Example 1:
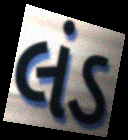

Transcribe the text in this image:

લંડ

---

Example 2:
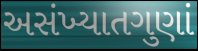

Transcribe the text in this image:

અસંખ્યાતગુણાં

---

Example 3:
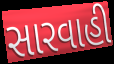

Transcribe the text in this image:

સારવાહી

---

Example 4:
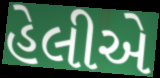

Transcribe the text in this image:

હેલીએ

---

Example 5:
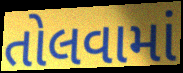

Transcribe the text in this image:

તોલવામાં